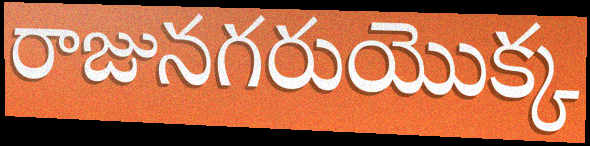
రాజునగరుయొక్క